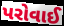
પરોવાઈ